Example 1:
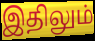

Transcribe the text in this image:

இதிலும்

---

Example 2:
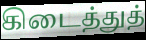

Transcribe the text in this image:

கிடைத்துத்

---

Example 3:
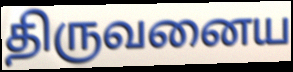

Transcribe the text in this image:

திருவனைய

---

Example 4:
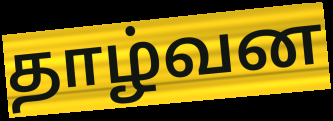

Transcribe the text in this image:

தாழ்வன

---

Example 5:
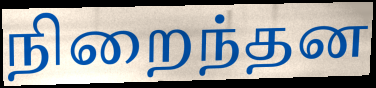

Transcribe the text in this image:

நிறைந்தன